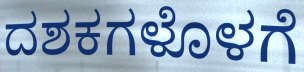
ದಶಕಗಳೊಳಗೆ